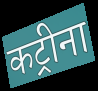
कट्रीना